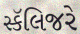
સ્કૅલિજરે